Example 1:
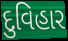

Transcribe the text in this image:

દુવિહાર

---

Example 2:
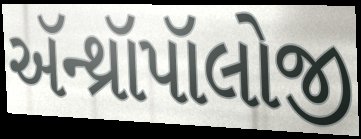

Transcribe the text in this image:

ઍન્થ્રૉપૉલોજી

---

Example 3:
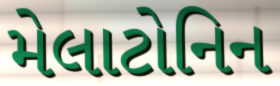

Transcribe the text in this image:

મેલાટોનિન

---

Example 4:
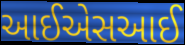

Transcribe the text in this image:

આઈએસઆઈ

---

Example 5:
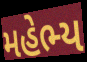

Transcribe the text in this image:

મહેભ્ય